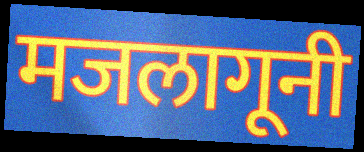
मजलागूनी